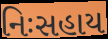
નિઃસહાય